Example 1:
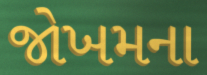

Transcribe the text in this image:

જોખમના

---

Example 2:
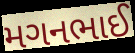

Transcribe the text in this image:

મગનભાઈ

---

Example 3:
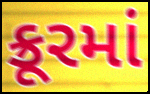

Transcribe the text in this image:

ક્રૂરમાં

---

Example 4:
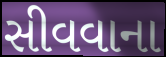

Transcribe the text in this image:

સીવવાના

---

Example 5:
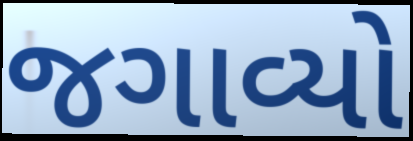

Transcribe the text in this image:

જગાવ્યો